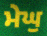
ਮੇਘੁ